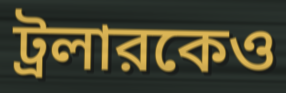
ট্রলারকেও